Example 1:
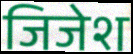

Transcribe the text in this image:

जिजेश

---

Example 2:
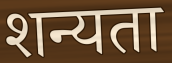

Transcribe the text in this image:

शन्यता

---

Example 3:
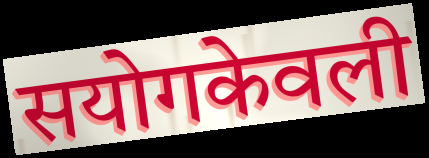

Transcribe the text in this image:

सयोगकेवली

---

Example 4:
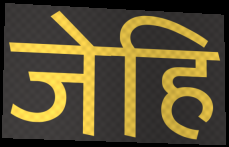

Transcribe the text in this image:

जेहि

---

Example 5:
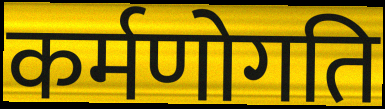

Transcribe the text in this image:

कर्मणोगति